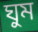
ঘুম